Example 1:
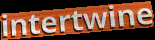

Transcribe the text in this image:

intertwine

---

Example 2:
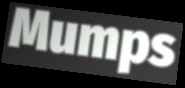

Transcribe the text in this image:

Mumps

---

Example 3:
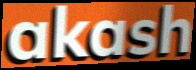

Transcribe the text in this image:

akash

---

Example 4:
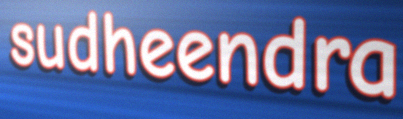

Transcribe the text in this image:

sudheendra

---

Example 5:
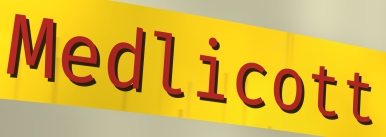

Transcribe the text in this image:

Medlicott